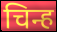
चिन्ह